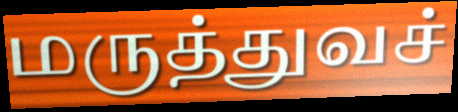
மருத்துவச்